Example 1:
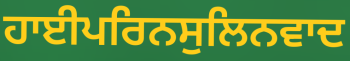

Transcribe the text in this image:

ਹਾਈਪਰਿਨਸੁਲਿਨਵਾਦ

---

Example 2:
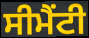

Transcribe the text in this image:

ਸੀਮੈਂਟੀ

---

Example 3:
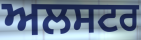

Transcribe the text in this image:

ਅਲਸਟਰ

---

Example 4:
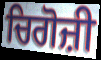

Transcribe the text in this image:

ਚਿਗੋਜ਼ੀ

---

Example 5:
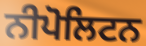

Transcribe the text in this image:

ਨੀਪੋਲਿਟਨ